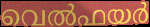
വെൽഫയർ